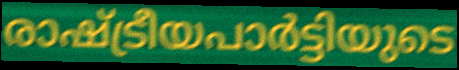
രാഷ്ട്രീയപാർട്ടിയുടെ